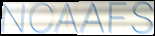
NCAAFS